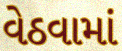
વેઠવામાં